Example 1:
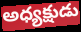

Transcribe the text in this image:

అధ్యక్షుడు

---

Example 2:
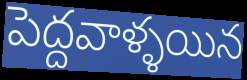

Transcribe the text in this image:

పెద్దవాళ్ళయిన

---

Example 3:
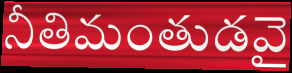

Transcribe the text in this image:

నీతిమంతుడవై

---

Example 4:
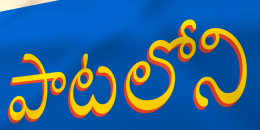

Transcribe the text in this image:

పాటలోని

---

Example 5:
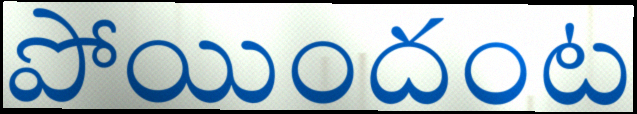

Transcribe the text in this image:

పోయిందంట